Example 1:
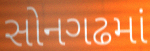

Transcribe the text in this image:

સોનગઢમાં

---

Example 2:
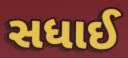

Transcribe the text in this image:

સધાઈ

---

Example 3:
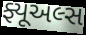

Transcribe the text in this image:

ફ્યૂઅલ્સ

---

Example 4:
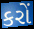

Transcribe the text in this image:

કરોં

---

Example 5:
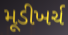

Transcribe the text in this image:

મૂડીખર્ચ